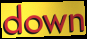
down